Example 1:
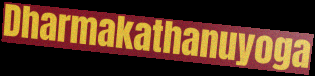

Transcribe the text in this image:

Dharmakathanuyoga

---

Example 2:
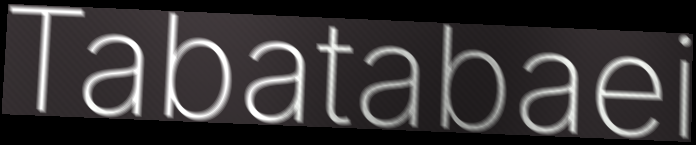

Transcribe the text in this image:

Tabatabaei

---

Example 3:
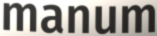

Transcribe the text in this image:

manum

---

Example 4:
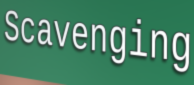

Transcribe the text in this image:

Scavenging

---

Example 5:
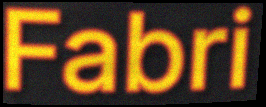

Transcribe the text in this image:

Fabri